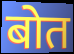
बोत